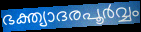
ഭക്ത്യാദരപൂർവ്വം